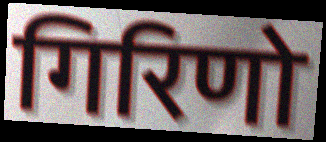
गिरिणो